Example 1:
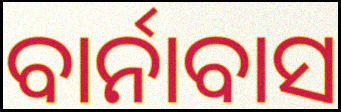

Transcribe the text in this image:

ବାର୍ନାବାସ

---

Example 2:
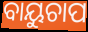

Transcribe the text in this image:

ବାୟୁଚାପ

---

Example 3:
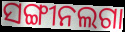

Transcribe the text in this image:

ସଙ୍ଗୀନଲଗା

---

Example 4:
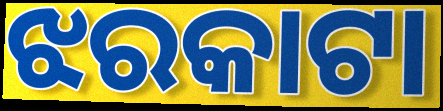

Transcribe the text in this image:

ଝରକାଟା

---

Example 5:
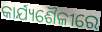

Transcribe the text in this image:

କାର୍ଯ୍ୟଶୈଳୀରେ